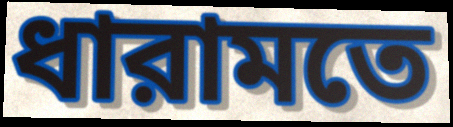
ধারামতে